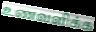
உணவளிக்க